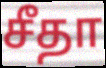
சீதா